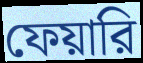
ফেয়ারি